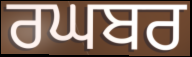
ਰਘਬਰ